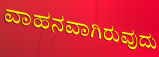
ವಾಹನವಾಗಿರುವುದು